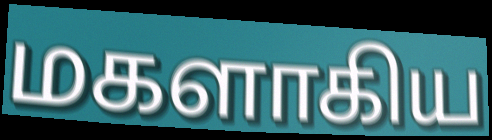
மகளாகிய